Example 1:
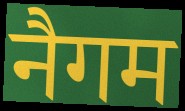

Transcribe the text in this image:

नैगम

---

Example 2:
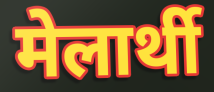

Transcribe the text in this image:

मेलार्थी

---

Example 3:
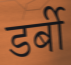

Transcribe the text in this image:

डर्बी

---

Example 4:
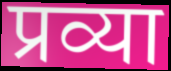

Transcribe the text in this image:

प्रव्या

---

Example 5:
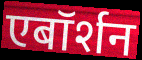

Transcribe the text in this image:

एबॉर्शन